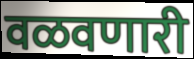
वळवणारी